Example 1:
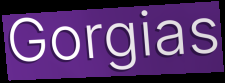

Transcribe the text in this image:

Gorgias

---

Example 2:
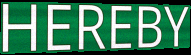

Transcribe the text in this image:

HEREBY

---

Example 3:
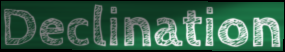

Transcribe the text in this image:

Declination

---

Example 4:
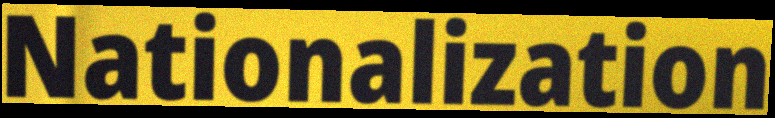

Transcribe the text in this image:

Nationalization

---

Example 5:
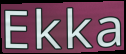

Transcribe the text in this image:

Ekka